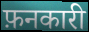
फ़नकारी